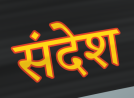
संदेश